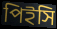
পিইসি